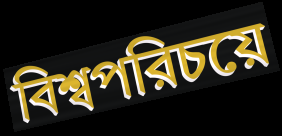
বিশ্বপরিচয়ে